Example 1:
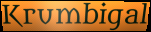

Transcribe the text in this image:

Krumbigal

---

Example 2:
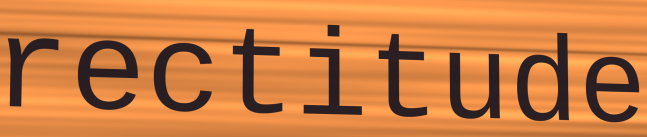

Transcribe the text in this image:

rectitude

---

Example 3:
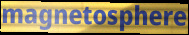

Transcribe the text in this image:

magnetosphere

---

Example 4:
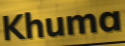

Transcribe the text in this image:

Khuma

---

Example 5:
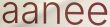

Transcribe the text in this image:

aanee